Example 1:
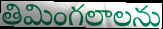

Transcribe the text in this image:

తిమింగలాలను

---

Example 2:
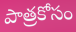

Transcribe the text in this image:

పాత్రకోసం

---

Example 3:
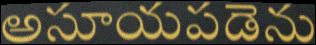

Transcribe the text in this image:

అసూయపడెను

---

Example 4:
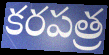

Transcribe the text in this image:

కరపత్ర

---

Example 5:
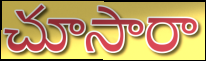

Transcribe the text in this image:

చూసారా